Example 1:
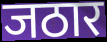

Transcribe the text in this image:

जठार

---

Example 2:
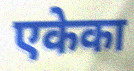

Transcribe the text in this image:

एकेका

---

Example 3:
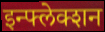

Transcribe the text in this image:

इन्फ्लेक्शन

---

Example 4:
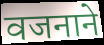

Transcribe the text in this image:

वजनाने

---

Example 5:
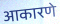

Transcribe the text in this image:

आकारणे